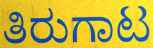
ತಿರುಗಾಟ